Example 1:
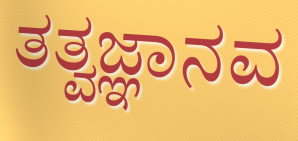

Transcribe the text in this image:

ತತ್ವಜ್ಞಾನವ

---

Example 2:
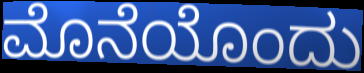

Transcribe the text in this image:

ಮೊನೆಯೊಂದು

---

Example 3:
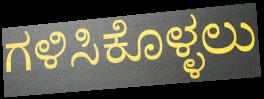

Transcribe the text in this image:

ಗಳಿಸಿಕೊಳ್ಳಲು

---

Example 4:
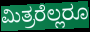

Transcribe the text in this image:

ಮಿತ್ರರೆಲ್ಲರೂ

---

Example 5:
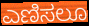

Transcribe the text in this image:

ಎಣಿಸಲೂ